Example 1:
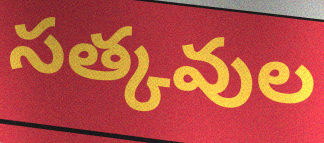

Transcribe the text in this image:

సత్కవుల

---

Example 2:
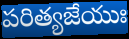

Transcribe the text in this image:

పరిత్యజేయుః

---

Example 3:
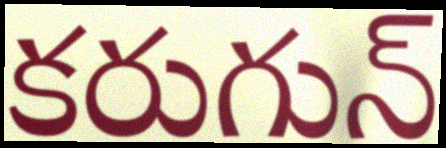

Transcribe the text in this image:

కరుగున్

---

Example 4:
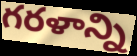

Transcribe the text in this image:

గరళాన్ని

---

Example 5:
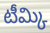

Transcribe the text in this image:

టీమ్కి